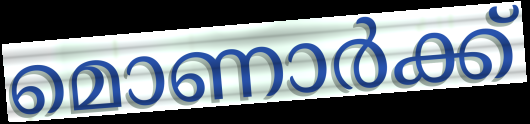
മൊണാർക്ക്